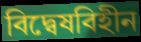
বিদ্বেষবিহীন